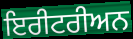
ਇਰੀਟਰੀਅਨ